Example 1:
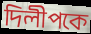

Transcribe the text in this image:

দিলীপকে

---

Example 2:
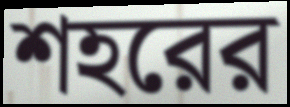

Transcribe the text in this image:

শহরের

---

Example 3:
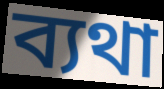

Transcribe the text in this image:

ব্যথা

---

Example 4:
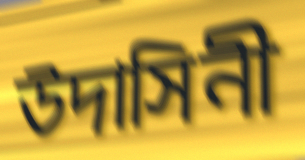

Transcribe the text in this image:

উদাসিনী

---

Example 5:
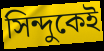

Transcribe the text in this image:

সিন্দুকেই